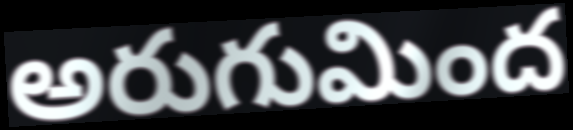
అరుగుమింద